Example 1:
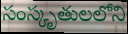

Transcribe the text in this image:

సంస్కృతులలోని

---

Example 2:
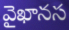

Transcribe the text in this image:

వైఖానస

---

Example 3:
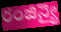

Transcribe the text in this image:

రంజిన్యై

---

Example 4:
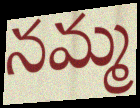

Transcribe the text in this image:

నమ్మ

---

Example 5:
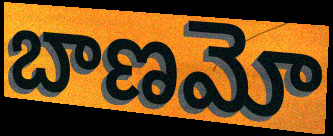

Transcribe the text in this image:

బాణమో